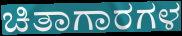
ಚಿತಾಗಾರಗಳ